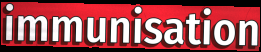
immunisation